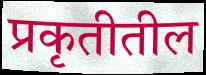
प्रकृतीतील